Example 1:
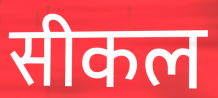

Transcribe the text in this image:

सीकल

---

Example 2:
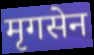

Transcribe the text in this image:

मृगसेन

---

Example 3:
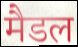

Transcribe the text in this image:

मैडल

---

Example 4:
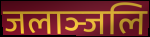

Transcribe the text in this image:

जलाञ्जलि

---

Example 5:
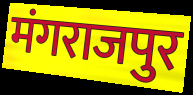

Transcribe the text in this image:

मंगराजपुर